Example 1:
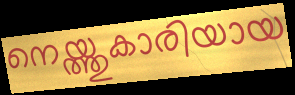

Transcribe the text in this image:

നെയ്ത്തുകാരിയായ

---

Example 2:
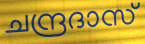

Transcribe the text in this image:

ചന്ദ്രദാസ്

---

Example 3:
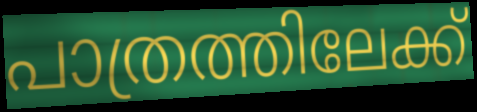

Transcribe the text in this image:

പാത്രത്തിലേക്ക്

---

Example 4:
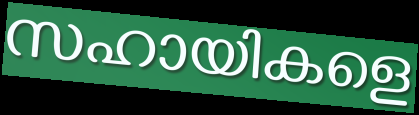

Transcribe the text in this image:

സഹായികളെ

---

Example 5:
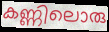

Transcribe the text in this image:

കണ്ണിലൊരു